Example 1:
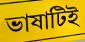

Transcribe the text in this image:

ভাষাটিই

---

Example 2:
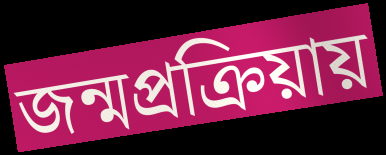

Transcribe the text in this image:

জন্মপ্রক্রিয়ায়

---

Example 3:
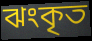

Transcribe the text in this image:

ঝংকৃত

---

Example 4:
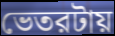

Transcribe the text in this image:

ভেতরটায়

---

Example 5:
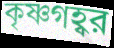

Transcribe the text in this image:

কৃষ্ণগহ্বর